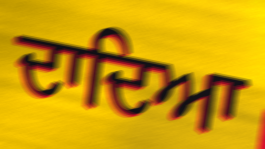
ਦਾਦਿਆ